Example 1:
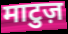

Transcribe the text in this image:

माटुज़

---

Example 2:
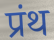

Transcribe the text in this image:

प्रंथ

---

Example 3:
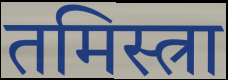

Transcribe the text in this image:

तमिस्त्रा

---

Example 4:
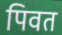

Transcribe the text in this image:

पिवत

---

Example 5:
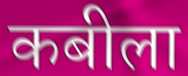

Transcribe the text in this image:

कबीला